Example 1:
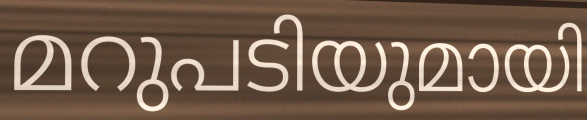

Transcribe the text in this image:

മറുപടിയുമായി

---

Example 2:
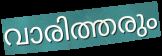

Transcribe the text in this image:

വാരിത്തരും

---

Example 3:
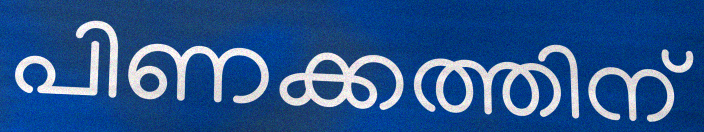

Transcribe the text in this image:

പിണക്കത്തിന്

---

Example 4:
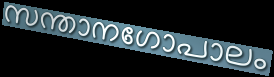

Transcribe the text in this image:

സന്താനഗോപാലം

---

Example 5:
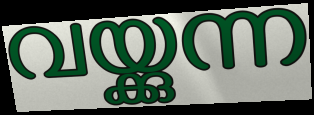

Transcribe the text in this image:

വയ്ക്കുന്ന